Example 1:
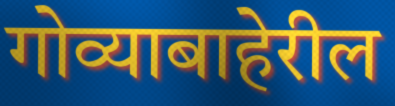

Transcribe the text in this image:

गोव्याबाहेरील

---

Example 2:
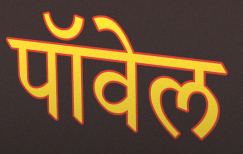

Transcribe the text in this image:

पॉवेल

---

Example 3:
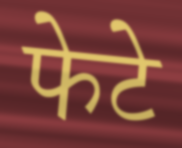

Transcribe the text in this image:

फेटे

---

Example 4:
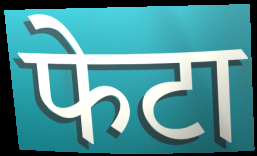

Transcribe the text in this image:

फेटा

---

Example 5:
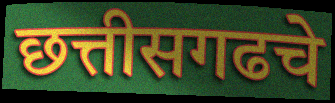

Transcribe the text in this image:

छत्तीसगढचे